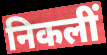
निकलीं